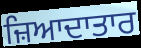
ਜ਼ਿਆਦਾਤਾਰ